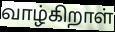
வாழ்கிறாள்